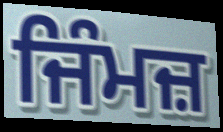
ਜਿੰਮਜ਼